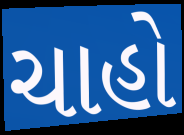
ચાહો